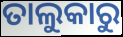
ତାଲୁକାରୁ